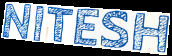
NITESH